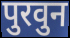
पुरवुन